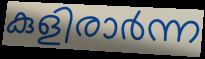
കുളിരാർന്ന